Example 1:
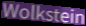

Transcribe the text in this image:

Wolkstein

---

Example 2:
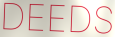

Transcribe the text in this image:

DEEDS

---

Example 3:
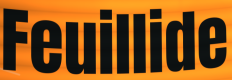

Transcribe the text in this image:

Feuillide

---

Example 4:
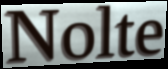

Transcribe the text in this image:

Nolte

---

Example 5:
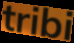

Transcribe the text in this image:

tribi